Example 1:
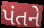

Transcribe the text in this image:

પંતને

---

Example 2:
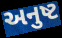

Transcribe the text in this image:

અનુષ્ટ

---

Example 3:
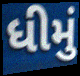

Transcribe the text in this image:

ધીમું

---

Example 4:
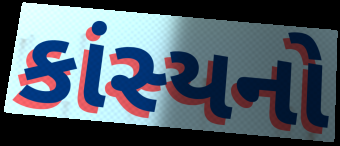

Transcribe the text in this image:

કાંસ્યનો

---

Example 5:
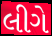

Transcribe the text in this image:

લીગે